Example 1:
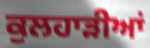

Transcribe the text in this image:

ਕੁਲਹਾੜੀਆਂ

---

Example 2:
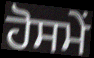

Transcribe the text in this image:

ਹੋਸਮੇਂ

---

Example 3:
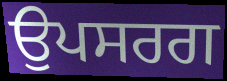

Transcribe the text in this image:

ਉਪਸਰਗ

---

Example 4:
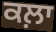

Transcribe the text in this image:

ਕਲ਼ਾ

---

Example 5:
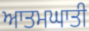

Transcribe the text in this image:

ਆਤਮਘਾਤੀ